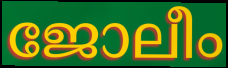
ജോലീം